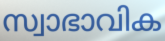
സ്വാഭാവിക